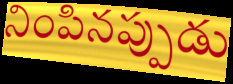
నింపినప్పుడు